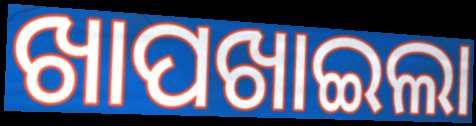
ଖାପଖାଇଲା